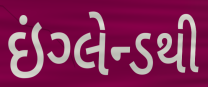
ઇંગ્લેન્ડથી